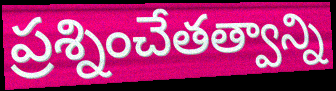
ప్రశ్నించేతత్వాన్ని